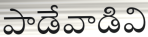
పాడేవాడివి